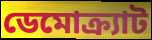
ডেমোক্র্যাট